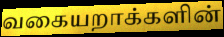
வகையறாக்களின்